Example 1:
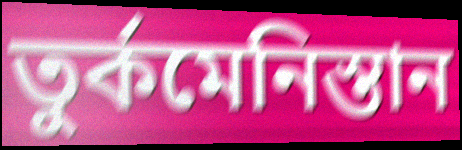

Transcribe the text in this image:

তুৰ্কমেনিস্তান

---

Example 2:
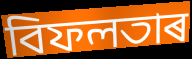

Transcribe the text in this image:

বিফলতাৰ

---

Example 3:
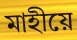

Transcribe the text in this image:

মাহীয়ে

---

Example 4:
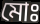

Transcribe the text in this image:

মোঃ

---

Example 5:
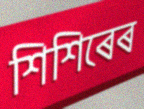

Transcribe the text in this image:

শিশিৰেৰ